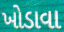
ખોડાવા